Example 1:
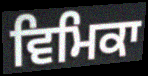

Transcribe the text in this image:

ਵਿਮਿਕਾ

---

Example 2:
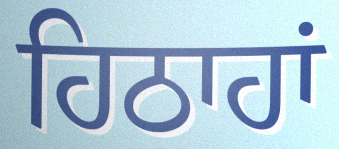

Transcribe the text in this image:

ਹਿਠਾਹਾਂ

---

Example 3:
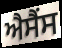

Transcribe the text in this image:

ਐਸੈਂਸ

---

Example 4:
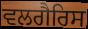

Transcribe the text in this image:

ਵਲਗੈਰਿਸ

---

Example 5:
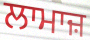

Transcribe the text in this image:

ਲਾਮਾਜ਼